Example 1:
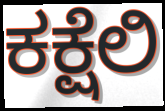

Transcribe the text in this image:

ಕಕ್ಷೆಲಿ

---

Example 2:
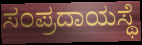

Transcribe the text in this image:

ಸಂಪ್ರದಾಯಸ್ಥೆ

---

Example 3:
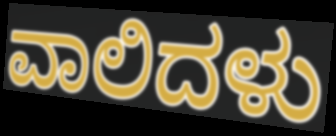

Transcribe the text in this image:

ವಾಲಿದಳು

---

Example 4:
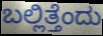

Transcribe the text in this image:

ಬಲ್ಲಿತ್ತೆಂದು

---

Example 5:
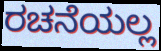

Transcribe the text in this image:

ರಚನೆಯಲ್ಲ